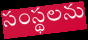
సంస్థలను